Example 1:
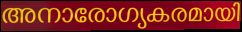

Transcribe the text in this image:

അനാരോഗ്യകരമായി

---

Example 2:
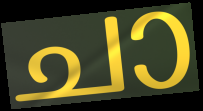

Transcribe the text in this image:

ചാ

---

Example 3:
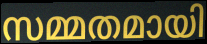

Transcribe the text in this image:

സമ്മതമായി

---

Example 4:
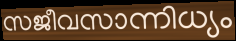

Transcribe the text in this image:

സജീവസാന്നിധ്യം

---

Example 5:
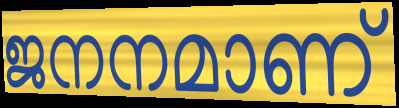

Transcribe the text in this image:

ജനനമാണ്